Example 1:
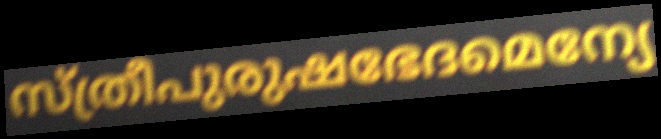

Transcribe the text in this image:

സ്ത്രീപുരുഷഭേദമെന്യേ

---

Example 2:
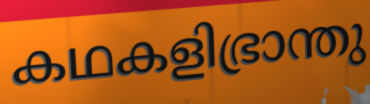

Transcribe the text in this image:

കഥകളിഭ്രാന്തു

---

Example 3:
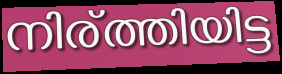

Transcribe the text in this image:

നിര്ത്തിയിട്ട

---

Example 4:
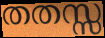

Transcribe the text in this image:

തതസ്സ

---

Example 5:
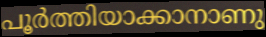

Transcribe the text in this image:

പൂർത്തിയാക്കാനാണു